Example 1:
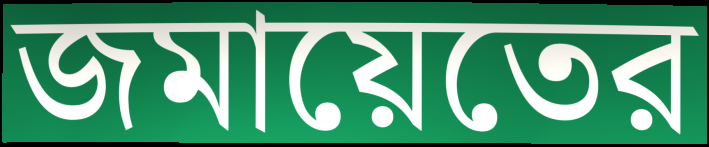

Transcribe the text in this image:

জমায়েতের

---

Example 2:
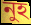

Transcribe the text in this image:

নুহ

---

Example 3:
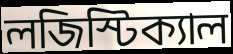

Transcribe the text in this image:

লজিস্টিক্যাল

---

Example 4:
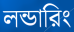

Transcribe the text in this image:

লন্ডারিং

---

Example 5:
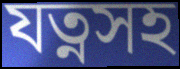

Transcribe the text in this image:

যত্নসহ